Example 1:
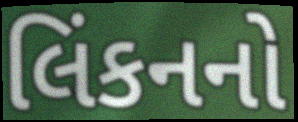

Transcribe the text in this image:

લિંકનનો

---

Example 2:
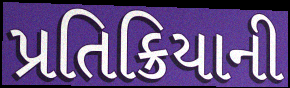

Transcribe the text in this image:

પ્રતિક્રિયાની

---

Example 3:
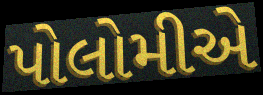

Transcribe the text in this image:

પોલોમીએ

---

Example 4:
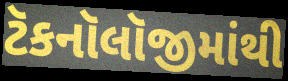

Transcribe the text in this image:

ટૅકનૉલૉજીમાંથી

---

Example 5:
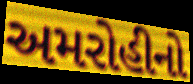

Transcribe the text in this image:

અમરોહીનો